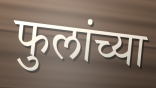
फुलांच्या